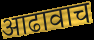
आढावाच